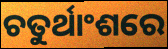
ଚତୁର୍ଥାଂଶରେ